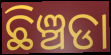
ଛିଞ୍ଚଡା